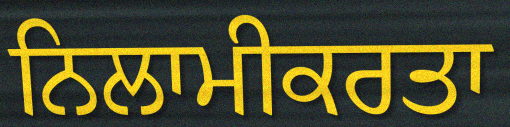
ਨਿਲਾਮੀਕਰਤਾ